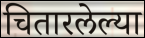
चितारलेल्या